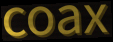
coax